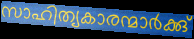
സാഹിത്യകാരന്മാർക്കു്